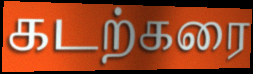
கடற்கரை